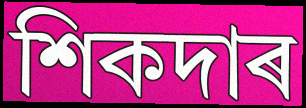
শিকদাৰ